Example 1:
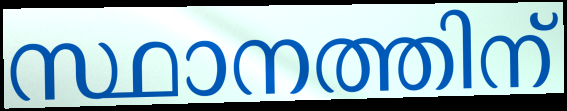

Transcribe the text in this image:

സ്ഥാനത്തിന്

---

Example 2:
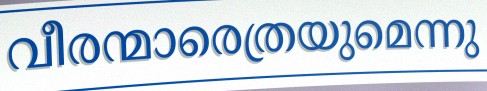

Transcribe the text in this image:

വീരന്മാരെത്രയുമെന്നു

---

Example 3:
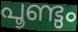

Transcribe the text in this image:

പൂണ്ടും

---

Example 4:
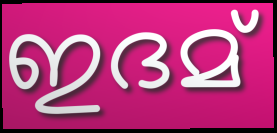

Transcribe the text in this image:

ഇദമ്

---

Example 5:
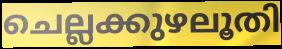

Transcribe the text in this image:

ചെല്ലക്കുഴലൂതി